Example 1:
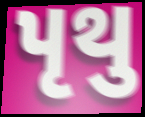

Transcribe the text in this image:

પૃથુ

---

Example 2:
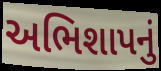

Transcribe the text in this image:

અભિશાપનું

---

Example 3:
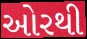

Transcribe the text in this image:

ઓરથી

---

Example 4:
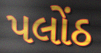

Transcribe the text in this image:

પલોંઠ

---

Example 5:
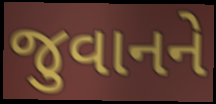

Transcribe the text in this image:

જુવાનને